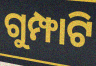
ଗୁମ୍ଫାଟି